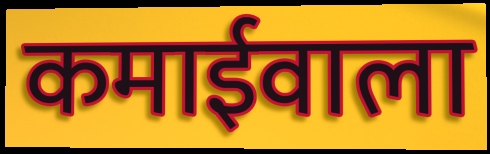
कमाईवाला